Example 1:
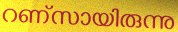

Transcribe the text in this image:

റണ്സായിരുന്നു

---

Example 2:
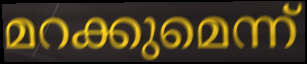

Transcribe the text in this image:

മറക്കുമെന്ന്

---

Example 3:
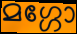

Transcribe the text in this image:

മഗ്ഗോ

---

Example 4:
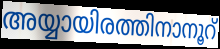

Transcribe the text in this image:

അയ്യായിരത്തിനാനൂറ്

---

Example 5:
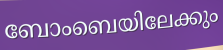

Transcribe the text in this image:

ബോംബെയിലേക്കും